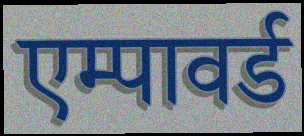
एम्पावर्ड